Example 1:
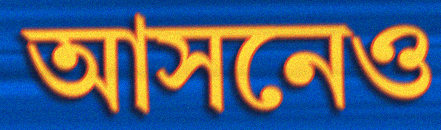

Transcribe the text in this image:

আসনেও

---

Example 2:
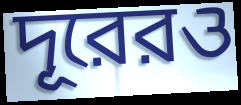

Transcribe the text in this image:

দূরেরও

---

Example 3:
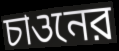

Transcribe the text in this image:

চাওনের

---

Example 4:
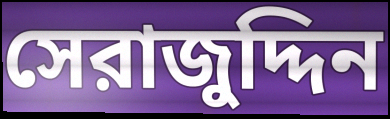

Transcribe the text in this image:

সেরাজুদ্দিন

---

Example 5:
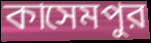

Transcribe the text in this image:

কাসেমপুর